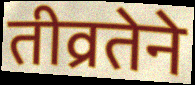
तीव्रतेने